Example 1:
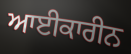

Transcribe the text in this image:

ਆਈਕਾਰੀਨ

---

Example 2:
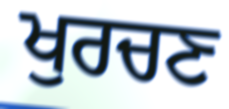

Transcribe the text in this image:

ਖੁਰਚਣ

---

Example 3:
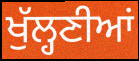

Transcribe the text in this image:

ਖੁੱਲ੍ਹਣੀਆਂ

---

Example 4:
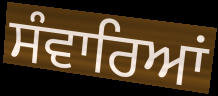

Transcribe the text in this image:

ਸੰਵਾਰਿਆਂ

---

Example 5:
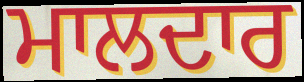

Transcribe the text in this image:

ਮਾਲਦਾਰ